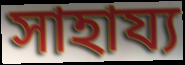
সাহায্য